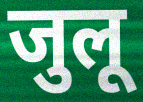
जुलू